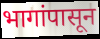
भागांपासून